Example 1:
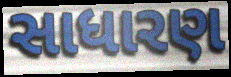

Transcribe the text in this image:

સાધારણ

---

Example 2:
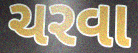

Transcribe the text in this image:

ચરવા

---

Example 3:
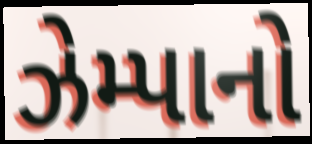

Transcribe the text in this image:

ઝેમ્પાનો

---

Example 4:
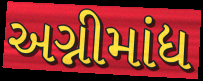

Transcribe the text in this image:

અગ્નીમાંદ્ય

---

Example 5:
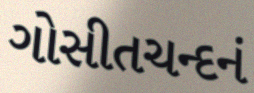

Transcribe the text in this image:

ગોસીતચન્દનં